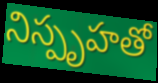
నిస్పృహతో